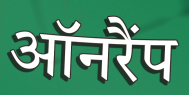
ऑनरैंप